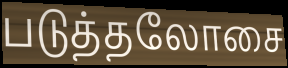
படுத்தலோசை